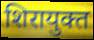
शिरायुक्त